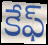
కేఫ్